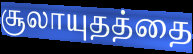
சூலாயுதத்தை